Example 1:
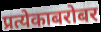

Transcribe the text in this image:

प्रत्येकाबरोबर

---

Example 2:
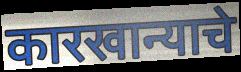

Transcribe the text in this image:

कारखान्याचे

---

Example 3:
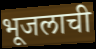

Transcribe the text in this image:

भूजलाची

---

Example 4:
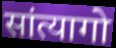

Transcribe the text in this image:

सांत्यागो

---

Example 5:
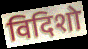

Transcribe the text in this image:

विदिशो